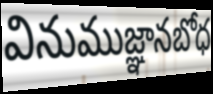
వినుముజ్ఞానబోధ